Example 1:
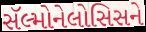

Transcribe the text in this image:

સૅલ્મોનેલોસિસને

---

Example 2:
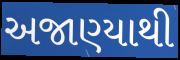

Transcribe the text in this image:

અજાણ્યાથી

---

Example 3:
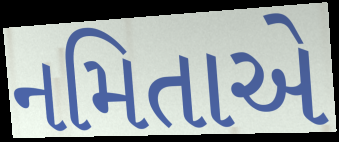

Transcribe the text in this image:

નમિતાએ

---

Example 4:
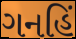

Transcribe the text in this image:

ગનહિં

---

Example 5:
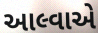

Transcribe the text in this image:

આલ્વાએ